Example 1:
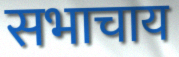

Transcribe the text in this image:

सभाचाय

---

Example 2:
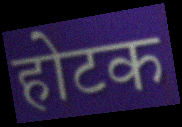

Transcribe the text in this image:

होटक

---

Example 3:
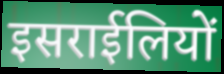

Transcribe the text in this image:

इसराईलियों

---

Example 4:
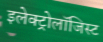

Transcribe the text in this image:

इलेक्ट्रोलॉजिस्ट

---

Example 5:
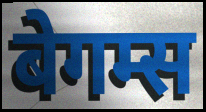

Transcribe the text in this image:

बेगम्स